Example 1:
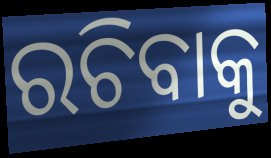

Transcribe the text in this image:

ରଚିବାକୁ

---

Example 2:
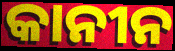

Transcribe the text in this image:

କାନୀନ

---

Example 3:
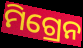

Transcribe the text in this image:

ମିଗ୍ରେନ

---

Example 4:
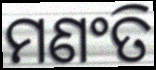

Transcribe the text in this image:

ମଣଂତି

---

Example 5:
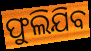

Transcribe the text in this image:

ଫୁଲିଯିବ